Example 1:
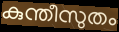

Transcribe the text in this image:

കുന്തീസുതം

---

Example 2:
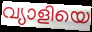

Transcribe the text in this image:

വ്യാളിയെ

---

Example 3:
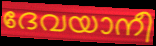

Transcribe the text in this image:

ദേവയാനീ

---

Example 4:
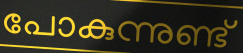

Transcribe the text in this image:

പോകുന്നുണ്ട്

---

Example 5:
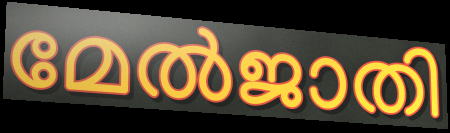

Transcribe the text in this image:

മേൽജാതി